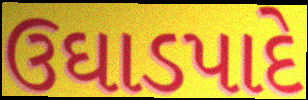
ઉઘાડપાદે